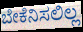
ಬೇಕೆನಿಸಲಿಲ್ಲ